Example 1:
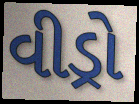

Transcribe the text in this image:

વીડ્રો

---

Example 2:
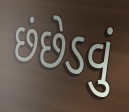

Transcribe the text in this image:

છંછેડવું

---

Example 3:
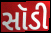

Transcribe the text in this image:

સૉડી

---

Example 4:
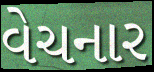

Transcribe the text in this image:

વેચનાર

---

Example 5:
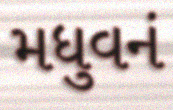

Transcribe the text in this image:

મધુવનં